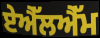
ਏਐੱਲਐੱਮ